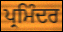
ਪ੍ਰਮਿੰਦਰ